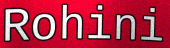
Rohini